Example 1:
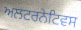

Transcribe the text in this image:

ਅਲਟਰਨੇਟਿਵਸ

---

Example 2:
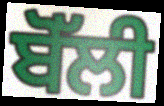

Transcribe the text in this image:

ਬੋੱਲੀ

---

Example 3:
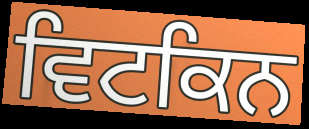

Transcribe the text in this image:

ਵਿਟਕਿਨ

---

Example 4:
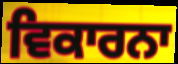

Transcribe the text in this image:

ਵਿਕਾਰਨਾ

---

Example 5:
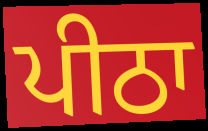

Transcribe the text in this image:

ਪੀਠਾ